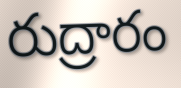
రుద్రారం